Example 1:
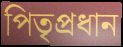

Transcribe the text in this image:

পিতৃপ্ৰধান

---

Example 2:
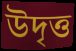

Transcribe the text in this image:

উদৃত্ত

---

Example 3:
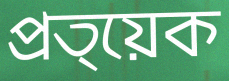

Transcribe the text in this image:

প্ৰত্য়েক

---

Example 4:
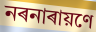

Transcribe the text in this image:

নৰনাৰায়ণে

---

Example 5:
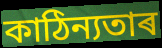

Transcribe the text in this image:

কাঠিন্যতাৰ